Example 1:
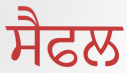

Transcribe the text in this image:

ਸੈਫਲ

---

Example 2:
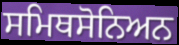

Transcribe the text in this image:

ਸਮਿਥਸੋਨਿਅਨ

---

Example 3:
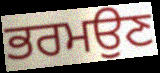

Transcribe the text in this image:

ਭਰਮਉਣ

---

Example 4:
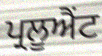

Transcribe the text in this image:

ਪ੍ਰਲੂਐਂਟ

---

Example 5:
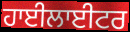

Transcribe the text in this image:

ਹਾਈਲਾਈਟਰ